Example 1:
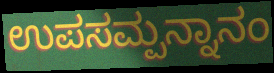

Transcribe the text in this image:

ಉಪಸಮ್ಪನ್ನಾನಂ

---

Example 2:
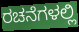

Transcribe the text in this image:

ರಚನೆಗಳಲ್ಲಿ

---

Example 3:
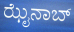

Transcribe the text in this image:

ಝೈನಾಬ್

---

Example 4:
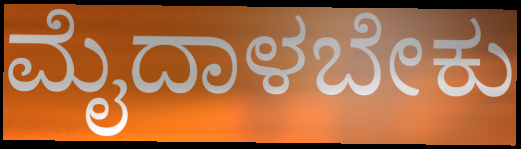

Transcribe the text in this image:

ಮೈದಾಳಬೇಕು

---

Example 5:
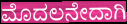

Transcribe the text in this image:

ಮೊದಲನೇದಾಗಿ